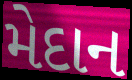
મેદાન